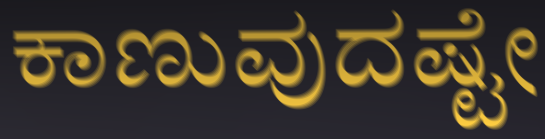
ಕಾಣುವುದಷ್ಟೇ